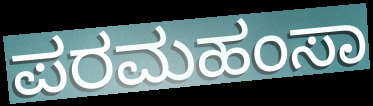
ಪರಮಹಂಸಾ